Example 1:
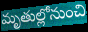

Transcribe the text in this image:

మృతుల్లోనుంచి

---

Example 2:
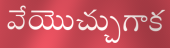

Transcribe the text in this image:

వేయొచ్చుగాక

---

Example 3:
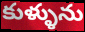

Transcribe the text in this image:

కుళ్ళును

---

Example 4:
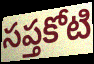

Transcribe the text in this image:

సప్తకోటి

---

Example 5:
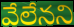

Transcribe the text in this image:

వేలేనని